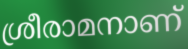
ശ്രീരാമനാണ്